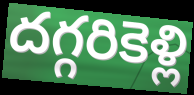
దగ్గరికెళ్లి